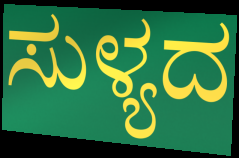
ಸುಳ್ಯದ